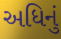
અધિનું